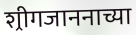
श्रीगजाननाच्या